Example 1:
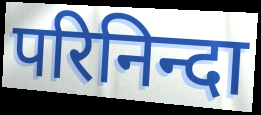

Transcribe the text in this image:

परिनिन्दा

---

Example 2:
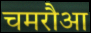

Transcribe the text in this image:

चमरौआ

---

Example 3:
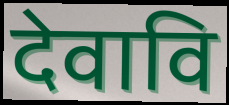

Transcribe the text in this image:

देवावि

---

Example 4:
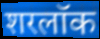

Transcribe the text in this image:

शरलॉक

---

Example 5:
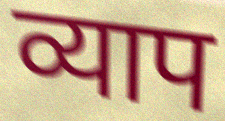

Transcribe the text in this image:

व्याप